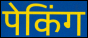
पेकिंग